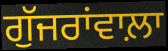
ਗੁੱਜਰਾਂਵਾਲ਼ਾ